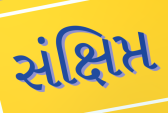
સંક્ષિપ્ત